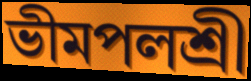
ভীমপলশ্রী